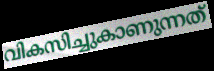
വികസിച്ചുകാണുന്നത്